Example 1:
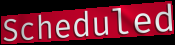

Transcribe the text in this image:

Scheduled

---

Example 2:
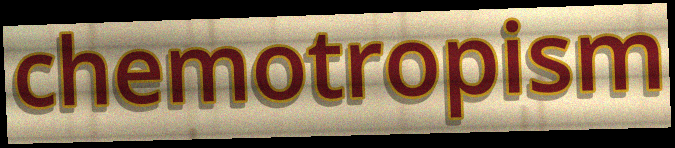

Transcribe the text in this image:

chemotropism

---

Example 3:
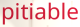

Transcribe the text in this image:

pitiable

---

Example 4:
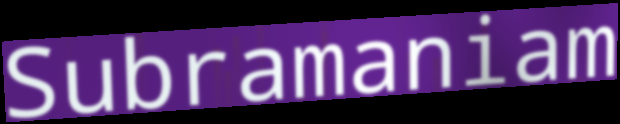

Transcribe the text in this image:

Subramaniam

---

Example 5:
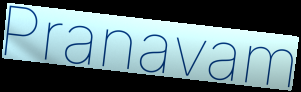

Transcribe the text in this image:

Pranavam